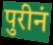
पुरीनं